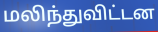
மலிந்துவிட்டன